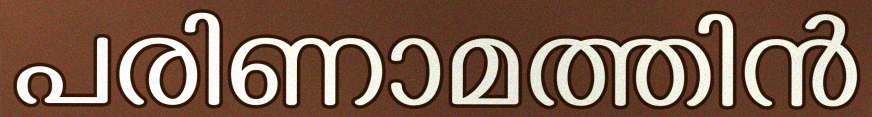
പരിണാമത്തിൻ